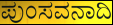
ಪುಂಸವನಾದಿ